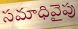
సమాధివైపు